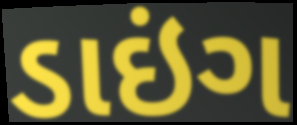
ડાઇંગ